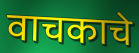
वाचकाचे